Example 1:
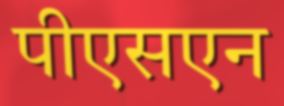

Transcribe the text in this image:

पीएसएन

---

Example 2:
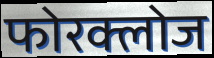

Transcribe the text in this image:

फोरक्लोज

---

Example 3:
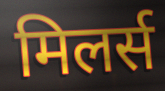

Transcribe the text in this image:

मिलर्स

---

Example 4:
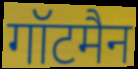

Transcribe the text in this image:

गॉटमैन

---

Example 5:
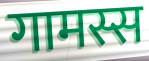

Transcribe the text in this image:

गामस्स